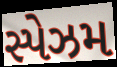
સ્પેઝમ